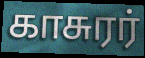
காசுரர்